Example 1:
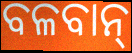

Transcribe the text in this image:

ବଳବାନ୍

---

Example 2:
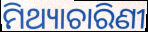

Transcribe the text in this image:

ମିଥ୍ୟାଚାରିଣୀ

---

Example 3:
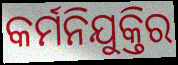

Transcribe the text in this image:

କର୍ମନିଯୁକ୍ତିର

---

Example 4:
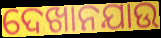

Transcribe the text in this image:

ଦେଖାନଯାଉ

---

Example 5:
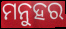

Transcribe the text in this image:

ମନୁହର